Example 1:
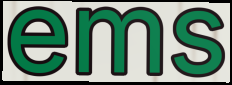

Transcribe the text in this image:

ems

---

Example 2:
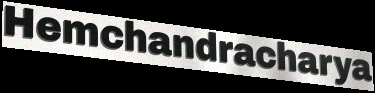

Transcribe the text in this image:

Hemchandracharya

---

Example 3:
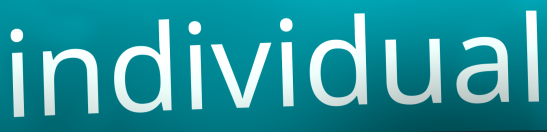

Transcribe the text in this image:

individual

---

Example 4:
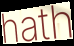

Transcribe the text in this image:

hath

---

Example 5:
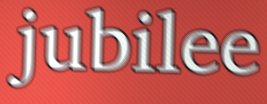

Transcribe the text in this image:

jubilee